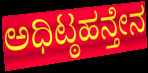
ಅಧಿಟ್ಠಹನ್ತೇನ